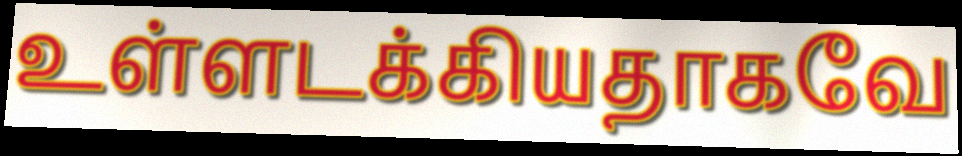
உள்ளடக்கியதாகவே